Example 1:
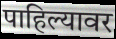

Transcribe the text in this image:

पाहिल्‍यावर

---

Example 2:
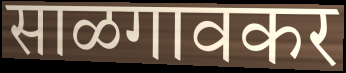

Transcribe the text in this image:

साळगावकर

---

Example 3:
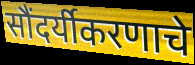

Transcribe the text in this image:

सौंदर्यीकरणाचे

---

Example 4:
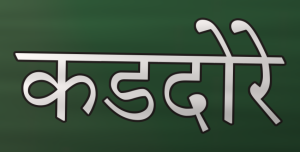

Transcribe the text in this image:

कडदोरे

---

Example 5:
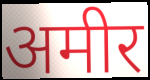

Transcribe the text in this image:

अमीर